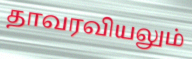
தாவரவியலும்